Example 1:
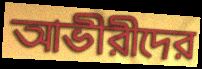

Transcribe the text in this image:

আভীরীদের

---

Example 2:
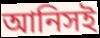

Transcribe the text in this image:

আনিসই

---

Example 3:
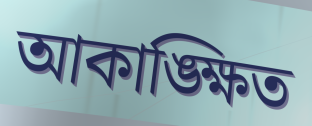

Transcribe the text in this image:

আকাঙ্ক্ষিত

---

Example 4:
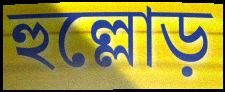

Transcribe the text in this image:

হুল্লোড়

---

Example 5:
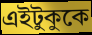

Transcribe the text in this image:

এইটুকুকে